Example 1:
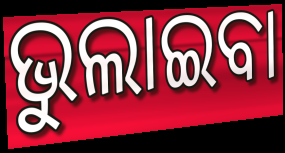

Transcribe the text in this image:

ଭୁଲାଇବା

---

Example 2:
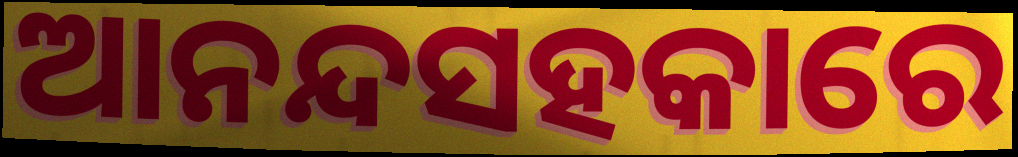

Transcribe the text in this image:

ଆନନ୍ଦସହକାରେ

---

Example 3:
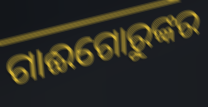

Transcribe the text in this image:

ଗାଈଗୋରୁଙ୍କର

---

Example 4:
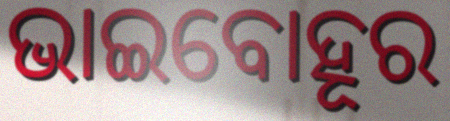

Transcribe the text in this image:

ଭାଇବୋହୂର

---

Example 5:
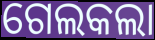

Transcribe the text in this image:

ଗେଲକଲା